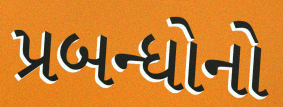
પ્રબન્ધોનો